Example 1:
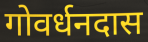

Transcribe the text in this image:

गोवर्धनदास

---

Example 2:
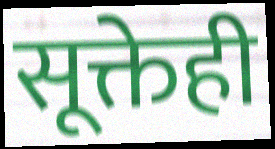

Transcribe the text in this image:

सूक्तेही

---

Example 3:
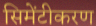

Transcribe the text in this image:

सिमेंटीकरण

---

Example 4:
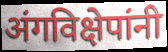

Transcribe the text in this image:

अंगविक्षेपांनी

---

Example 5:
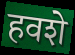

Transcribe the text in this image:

हवशे